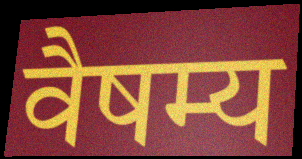
वैषम्‍य